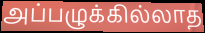
அப்பழுக்கில்லாத